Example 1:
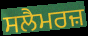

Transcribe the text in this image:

ਸਲੈਮਰਜ਼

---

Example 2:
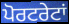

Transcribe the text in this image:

ਪੋਰਟਰੇਟਾਂ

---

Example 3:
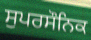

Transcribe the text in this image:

ਸੁਪਰਸੌਨਿਕ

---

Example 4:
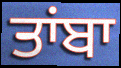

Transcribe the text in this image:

ਤਾਂਬਾ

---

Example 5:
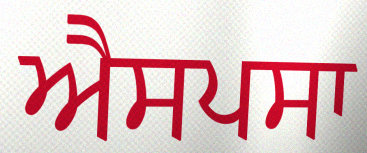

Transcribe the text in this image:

ਐਸਪਸਾ